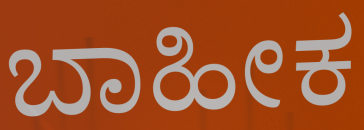
ಬಾಹೀಕ